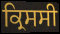
ਕ੍ਰਿਸਸੀ